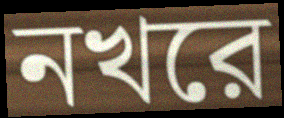
নখরে